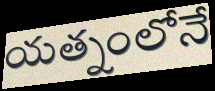
యత్నంలోనే